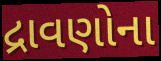
દ્રાવણોના